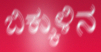
ಬಿಕ್ಕುಳಿನ